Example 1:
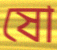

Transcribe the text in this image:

ষো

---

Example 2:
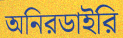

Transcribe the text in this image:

অনিরডাইরি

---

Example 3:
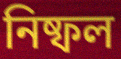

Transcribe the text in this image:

নিষ্ফল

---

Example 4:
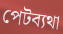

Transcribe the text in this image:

পেটব্যথা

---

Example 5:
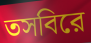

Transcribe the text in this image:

তসবিরে